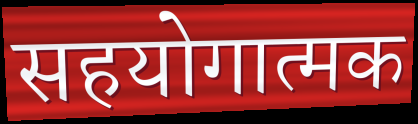
सहयोगात्मक